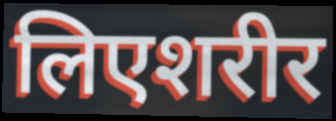
लिएशरीर